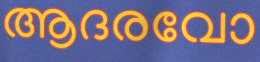
ആദരവോ